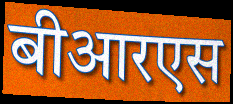
बीआरएस